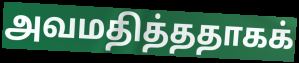
அவமதித்ததாகக்